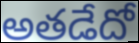
అతడేదో